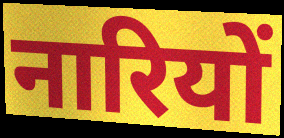
नारियों